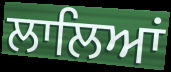
ਲਾਲਿਆਂ